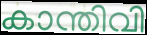
കാന്തിവി